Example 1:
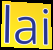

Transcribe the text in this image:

lai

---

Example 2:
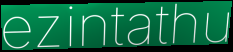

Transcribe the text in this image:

ezintathu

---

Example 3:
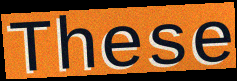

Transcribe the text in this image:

These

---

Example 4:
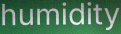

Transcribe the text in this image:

humidity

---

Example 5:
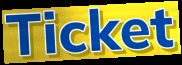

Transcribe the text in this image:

Ticket